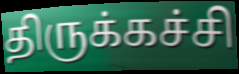
திருக்கச்சி